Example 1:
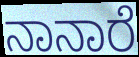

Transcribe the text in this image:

ನಾನಾರೆ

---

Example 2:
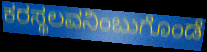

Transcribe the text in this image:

ಕರಸ್ಥಲವನಿಂಬುಗೊಂಡೆ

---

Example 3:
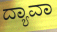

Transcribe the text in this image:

ದ್ಯಾವಾ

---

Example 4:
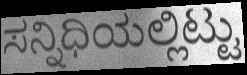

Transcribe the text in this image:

ಸನ್ನಿಧಿಯಲ್ಲಿಟ್ಟು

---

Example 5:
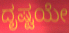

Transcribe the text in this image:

ದೃಷ್ಟಯೇ